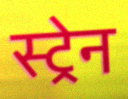
स्ट्रेन